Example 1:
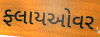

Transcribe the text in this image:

ફ્લાયઓવર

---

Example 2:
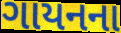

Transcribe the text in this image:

ગાયનના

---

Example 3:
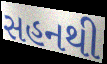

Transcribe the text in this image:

સહનથી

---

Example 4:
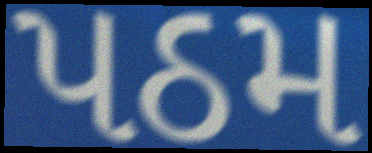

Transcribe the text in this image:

પઠમ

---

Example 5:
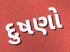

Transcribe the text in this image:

દુષણો